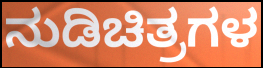
ನುಡಿಚಿತ್ರಗಳ